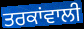
ਤਰਕਾਂਵਾਲੀ